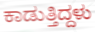
ಕಾಡುತ್ತಿದ್ದಳು